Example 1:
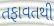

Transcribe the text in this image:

તફાવતથી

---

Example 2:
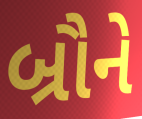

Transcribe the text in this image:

બ્રૌને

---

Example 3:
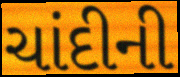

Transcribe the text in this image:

ચાંદીની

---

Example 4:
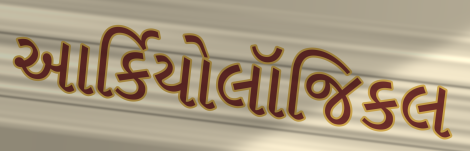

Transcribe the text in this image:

આર્કિયોલૉજિકલ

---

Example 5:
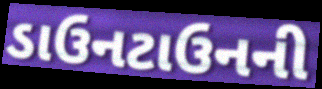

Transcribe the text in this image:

ડાઉનટાઉનની